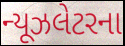
ન્યૂઝલેટરના